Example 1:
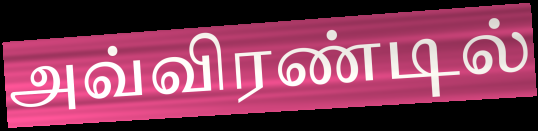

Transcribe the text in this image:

அவ்விரண்டில்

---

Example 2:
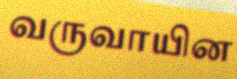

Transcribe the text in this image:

வருவாயின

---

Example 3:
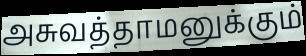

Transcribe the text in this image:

அசுவத்தாமனுக்கும்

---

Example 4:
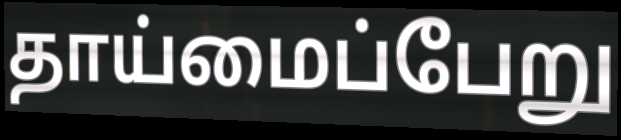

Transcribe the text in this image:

தாய்மைப்பேறு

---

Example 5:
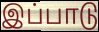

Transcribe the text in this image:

இப்பாடு